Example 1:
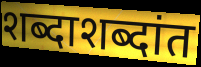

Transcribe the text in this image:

शब्दाशब्दांत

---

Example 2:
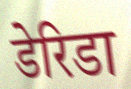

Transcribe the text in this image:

डेरिडा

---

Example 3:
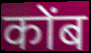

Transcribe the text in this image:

कोंब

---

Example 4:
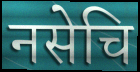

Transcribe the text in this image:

नसेचि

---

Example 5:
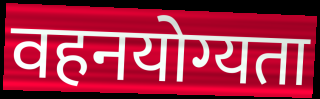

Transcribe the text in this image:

वहनयोग्यता